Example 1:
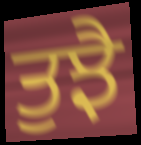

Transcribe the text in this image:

ਤੁਝੈ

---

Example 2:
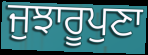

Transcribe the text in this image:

ਜੁਝਾਰੂਪੁਣਾ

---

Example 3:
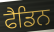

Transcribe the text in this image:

ਫੈਡਿਨ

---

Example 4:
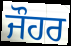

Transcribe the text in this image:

ਜੌਹਰ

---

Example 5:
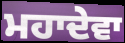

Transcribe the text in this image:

ਮਹਾਦੇਵਾ